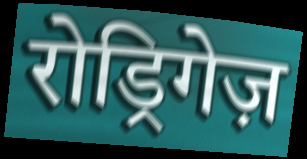
रोड्रिगेज़